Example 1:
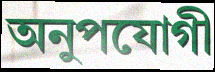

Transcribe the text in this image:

অনুপযোগী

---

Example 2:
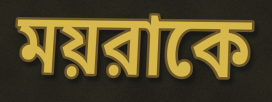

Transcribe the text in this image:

ময়রাকে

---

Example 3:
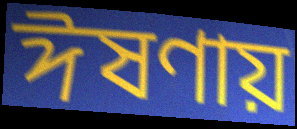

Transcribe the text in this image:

ঈষণায়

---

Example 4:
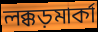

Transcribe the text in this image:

লক্কড়মার্কা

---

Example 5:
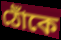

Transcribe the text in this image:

ঠোঁকে